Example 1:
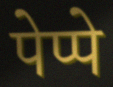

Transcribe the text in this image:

पेप्पे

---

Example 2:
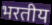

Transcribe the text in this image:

भरतीय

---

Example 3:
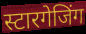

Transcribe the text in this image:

स्टारगेजिंग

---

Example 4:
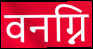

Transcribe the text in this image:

वनग्नि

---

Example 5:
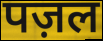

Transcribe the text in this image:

पज़ल